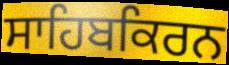
ਸਾਹਿਬਕਿਰਨ